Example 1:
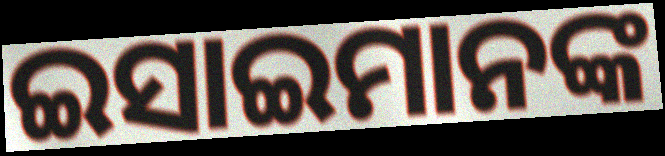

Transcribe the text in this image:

ଇସାଇମାନଙ୍କ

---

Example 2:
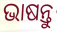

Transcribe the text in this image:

ଭାଷନ୍ତୁ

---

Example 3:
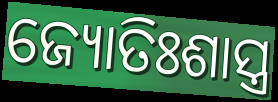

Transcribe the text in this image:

ଜ୍ୟୋତିଃଶାସ୍ତ୍ର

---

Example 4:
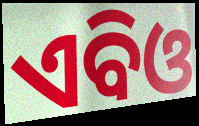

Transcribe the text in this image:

ଏବିଓ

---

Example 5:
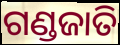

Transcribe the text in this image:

ଗଣ୍ଡଜାତି